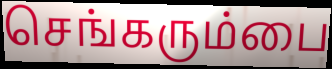
செங்கரும்பை